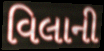
વિલાની